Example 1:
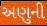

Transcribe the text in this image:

અણુની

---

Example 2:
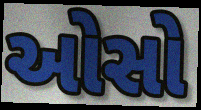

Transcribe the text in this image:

ઓસો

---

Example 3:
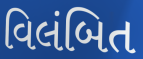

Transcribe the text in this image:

વિલંબિત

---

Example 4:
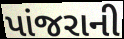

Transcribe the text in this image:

પાંજરાની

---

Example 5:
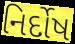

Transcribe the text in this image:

નિર્દોષ